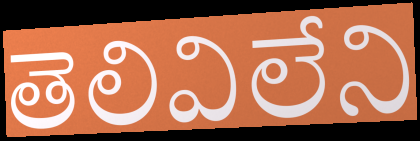
తెలివిలేని